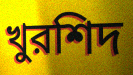
খুরশিদ